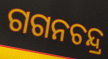
ଗଗନଚନ୍ଦ୍ର